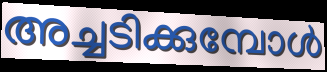
അച്ചടിക്കുമ്പോൾ